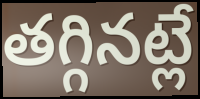
తగ్గినట్లే